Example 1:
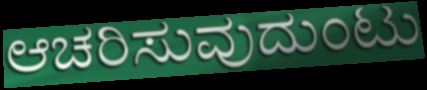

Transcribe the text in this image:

ಆಚರಿಸುವುದುಂಟು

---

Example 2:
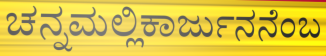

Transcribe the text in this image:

ಚನ್ನಮಲ್ಲಿಕಾರ್ಜುನನೆಂಬ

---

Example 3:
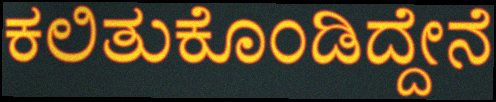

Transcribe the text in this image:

ಕಲಿತುಕೊಂಡಿದ್ದೇನೆ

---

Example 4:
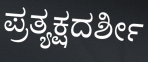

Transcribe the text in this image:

ಪ್ರತ್ಯಕ್ಷದರ್ಶೀ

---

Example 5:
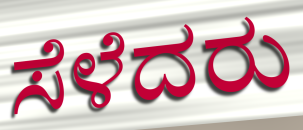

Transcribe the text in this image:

ಸೆಳೆದರು